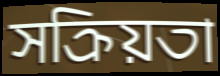
সক্রিয়তা